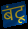
बंटू